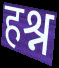
हश्न